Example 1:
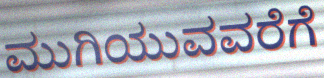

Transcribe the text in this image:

ಮುಗಿಯುವವರೆಗೆ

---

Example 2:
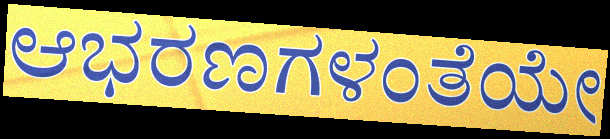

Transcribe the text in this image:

ಆಭರಣಗಳಂತೆಯೇ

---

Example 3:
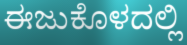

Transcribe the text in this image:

ಈಜುಕೊಳದಲ್ಲಿ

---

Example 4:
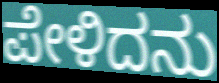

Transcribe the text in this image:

ಪೇಳಿದನು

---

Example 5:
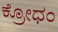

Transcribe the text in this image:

ಕ್ರೋಧಂ